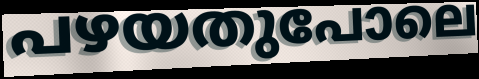
പഴയതുപോലെ